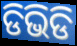
ଡିଭିଡି